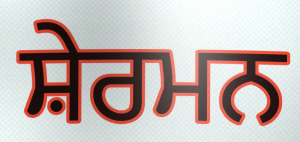
ਸ਼ੇਰਮਨ